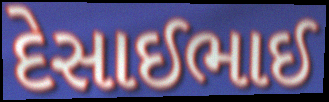
દેસાઈભાઈ